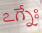
ఽగ్నేః